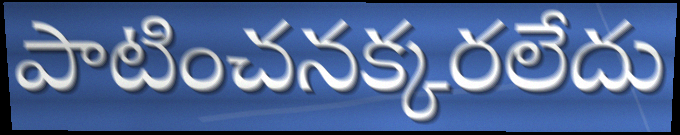
పాటించనక్కరలేదు